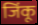
जिंकू